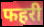
फहरी